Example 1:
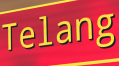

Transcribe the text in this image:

Telang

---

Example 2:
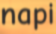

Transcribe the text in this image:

napi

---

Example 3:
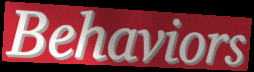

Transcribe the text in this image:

Behaviors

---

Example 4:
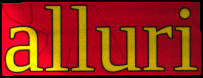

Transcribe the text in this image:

alluri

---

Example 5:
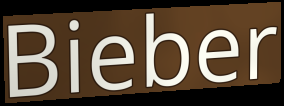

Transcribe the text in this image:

Bieber